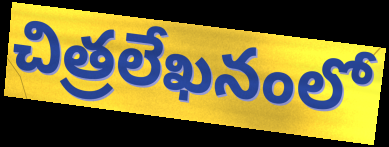
చిత్రలేఖనంలో